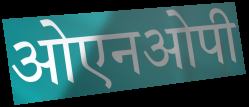
ओएनओपी